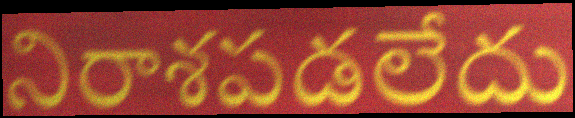
నిరాశపడలేదు